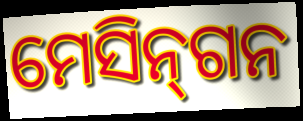
ମେସିନ୍‌ଗନ